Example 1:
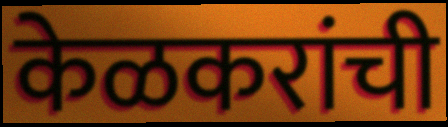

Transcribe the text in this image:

केळकरांची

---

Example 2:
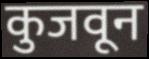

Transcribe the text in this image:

कुजवून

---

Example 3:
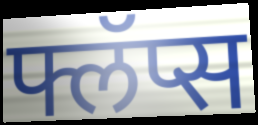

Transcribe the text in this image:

फ्लॅप्स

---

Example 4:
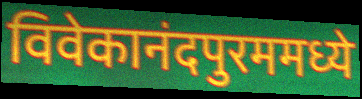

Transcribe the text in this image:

विवेकानंदपुरममध्ये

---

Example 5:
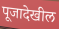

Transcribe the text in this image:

पूजादेखील